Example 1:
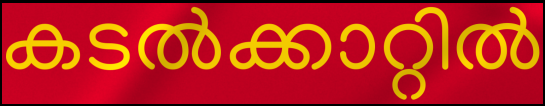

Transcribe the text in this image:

കടൽക്കാറ്റിൽ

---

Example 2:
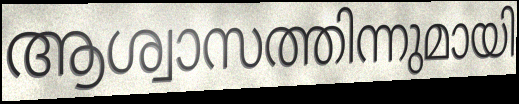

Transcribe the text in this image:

ആശ്വാസത്തിന്നുമായി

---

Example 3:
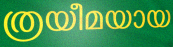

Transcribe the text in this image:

ത്രയീമയായ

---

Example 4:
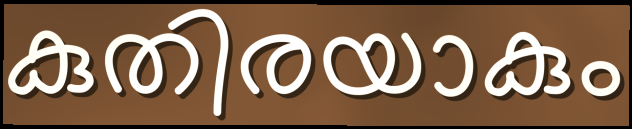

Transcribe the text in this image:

കുതിരയാകും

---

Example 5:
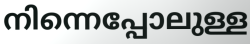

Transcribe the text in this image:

നിന്നെപ്പോലുള്ള